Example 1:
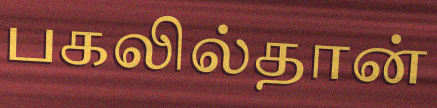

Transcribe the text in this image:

பகலில்தான்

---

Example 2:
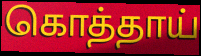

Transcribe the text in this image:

கொத்தாய்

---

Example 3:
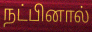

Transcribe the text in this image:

நட்பினால்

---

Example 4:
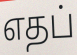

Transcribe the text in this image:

எதப்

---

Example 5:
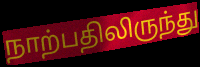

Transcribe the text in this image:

நாற்பதிலிருந்து